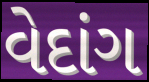
વેદાંગ